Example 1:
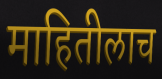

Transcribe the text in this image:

माहितीलाच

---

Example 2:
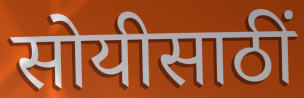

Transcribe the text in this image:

सोयीसाठीं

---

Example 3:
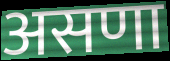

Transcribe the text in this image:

असणा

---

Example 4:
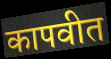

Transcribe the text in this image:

कापवीत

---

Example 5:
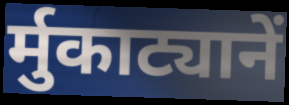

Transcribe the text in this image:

र्मुकाट्यानें